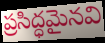
ప్రసిద్ధమైనవి